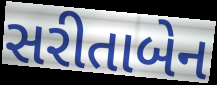
સરીતાબેન